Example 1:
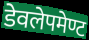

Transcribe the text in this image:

डेवलेपमेण्ट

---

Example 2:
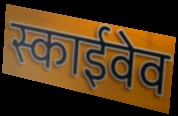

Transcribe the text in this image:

स्काईवेव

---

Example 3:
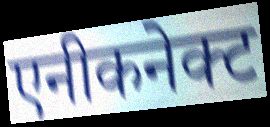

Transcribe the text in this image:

एनीकनेक्ट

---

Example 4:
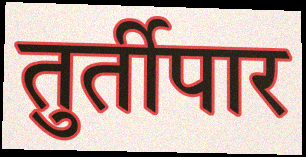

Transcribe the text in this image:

तुर्तीपार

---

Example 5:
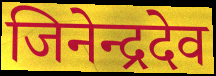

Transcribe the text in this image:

जिनेन्द्रदेव